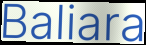
Baliara